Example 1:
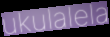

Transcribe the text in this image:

ukulalela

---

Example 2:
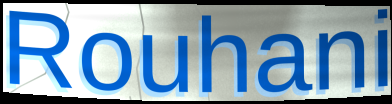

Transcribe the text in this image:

Rouhani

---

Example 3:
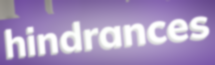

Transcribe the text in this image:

hindrances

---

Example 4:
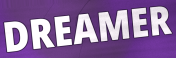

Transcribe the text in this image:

DREAMER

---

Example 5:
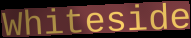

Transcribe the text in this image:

Whiteside